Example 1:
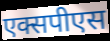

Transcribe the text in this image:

एक्सपीएस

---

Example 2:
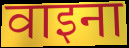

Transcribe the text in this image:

वाइना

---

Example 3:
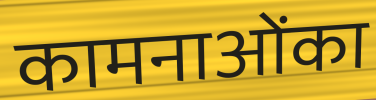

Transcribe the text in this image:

कामनाओंका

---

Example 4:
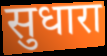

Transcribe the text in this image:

सुधारा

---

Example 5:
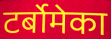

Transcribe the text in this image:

टर्बोमेका